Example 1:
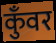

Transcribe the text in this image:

कुँवर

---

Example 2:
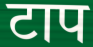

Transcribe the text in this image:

टाप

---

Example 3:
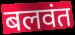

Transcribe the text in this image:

बलवंत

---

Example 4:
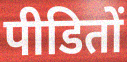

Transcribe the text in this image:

पीडितों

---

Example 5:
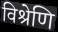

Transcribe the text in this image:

विश्रेणि